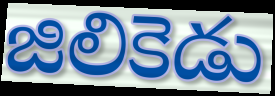
జిలికెడు